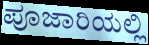
ಪೂಜಾರಿಯಲ್ಲಿ